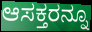
ಆಸಕ್ತರನ್ನೂ